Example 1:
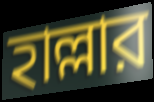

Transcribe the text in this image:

হাল্লার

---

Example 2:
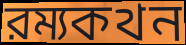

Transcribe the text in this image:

রম্যকথন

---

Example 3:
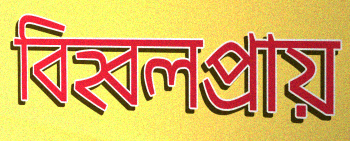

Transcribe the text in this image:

বিহ্বলপ্রায়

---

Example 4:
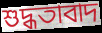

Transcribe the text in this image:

শুদ্ধতাবাদ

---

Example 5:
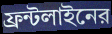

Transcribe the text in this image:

ফ্রন্টলাইনের